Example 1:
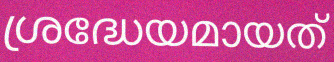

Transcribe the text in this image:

ശ്രദ്ധേയമായത്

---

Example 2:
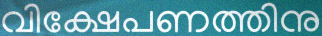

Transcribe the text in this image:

വിക്ഷേപണത്തിനു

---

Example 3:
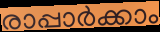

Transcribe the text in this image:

രാപ്പാർക്കാം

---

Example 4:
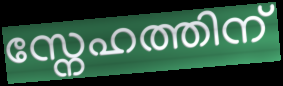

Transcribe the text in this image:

സ്നേഹത്തിന്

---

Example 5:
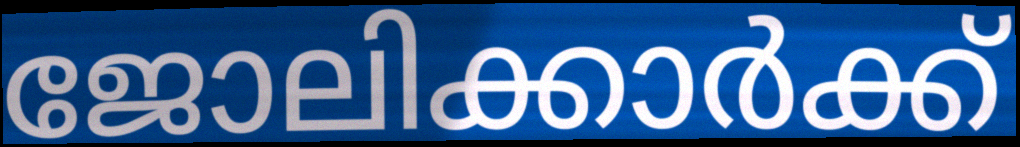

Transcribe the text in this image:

ജോലിക്കാർക്ക്